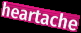
heartache